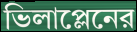
ভিলাপ্লেনের